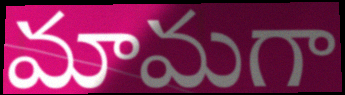
మామగా